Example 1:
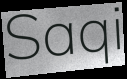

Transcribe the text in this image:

Saqi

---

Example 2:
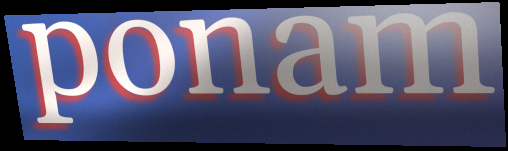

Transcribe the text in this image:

ponam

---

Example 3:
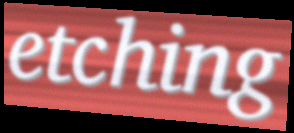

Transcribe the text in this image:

etching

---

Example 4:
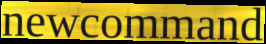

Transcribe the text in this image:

newcommand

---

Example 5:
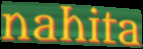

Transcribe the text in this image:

nahita